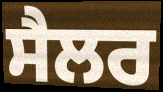
ਸੈਲਰ